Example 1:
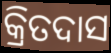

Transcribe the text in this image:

କ୍ରିତଦାସ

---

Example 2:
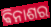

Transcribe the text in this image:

ଵିନାଶର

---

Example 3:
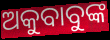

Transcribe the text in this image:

ଅକୁବାବୁଙ୍କ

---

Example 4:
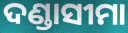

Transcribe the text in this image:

ଦଣ୍ଡାସୀମା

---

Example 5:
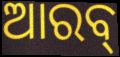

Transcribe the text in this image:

ଆରବ୍